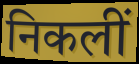
निकलीं